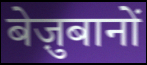
बेज़ुबानों